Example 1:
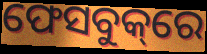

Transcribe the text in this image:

ଫେସବୁକ୍‌ରେ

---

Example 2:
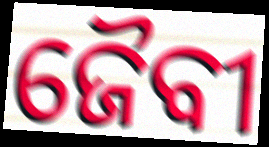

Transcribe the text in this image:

ଜୈବୀ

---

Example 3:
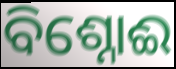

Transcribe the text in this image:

ବିଶ୍ନୋଈ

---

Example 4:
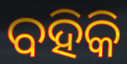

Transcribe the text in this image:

ବହିକି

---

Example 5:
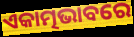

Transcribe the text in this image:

ଏକାତ୍ମଭାବରେ